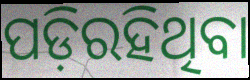
ପଡ଼ିରହିଥିବା